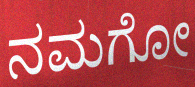
ನಮಗೋ